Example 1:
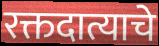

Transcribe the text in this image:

रक्तदात्याचे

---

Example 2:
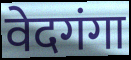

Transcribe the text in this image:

वेदगंगा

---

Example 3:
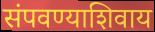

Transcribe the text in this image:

संपवण्याशिवाय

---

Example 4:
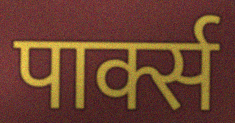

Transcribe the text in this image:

पार्क्स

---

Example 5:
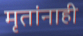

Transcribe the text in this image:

मृतांनाही